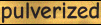
pulverized